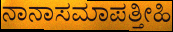
ನಾನಾಸಮಾಪತ್ತೀಹಿ